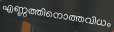
എണ്ണത്തിനൊത്തവിധം